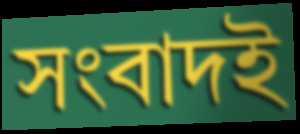
সংবাদই